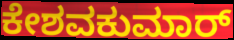
ಕೇಶವಕುಮಾರ್